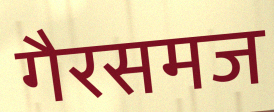
गैरसमज